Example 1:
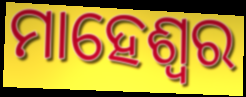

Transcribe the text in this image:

ମାହେଶ୍ଵର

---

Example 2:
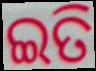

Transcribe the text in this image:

ଇତି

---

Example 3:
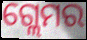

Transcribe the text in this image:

ଗ୍ଲେମର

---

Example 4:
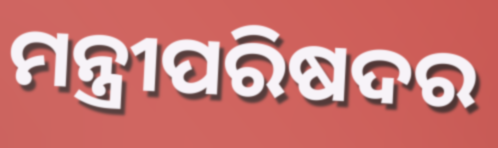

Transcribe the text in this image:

ମନ୍ତ୍ରୀପରିଷଦର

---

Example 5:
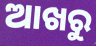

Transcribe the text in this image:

ଆଖରୁ